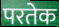
परतेक